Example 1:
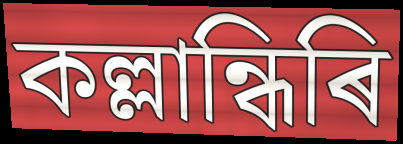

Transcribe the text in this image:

কল্লান্ধিৰি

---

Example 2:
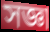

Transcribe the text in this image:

সজ্ঞা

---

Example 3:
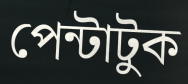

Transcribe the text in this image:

পেন্টাটুক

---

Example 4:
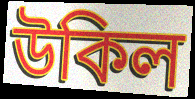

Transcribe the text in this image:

উকিল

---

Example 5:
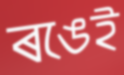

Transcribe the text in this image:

ৰঙেই